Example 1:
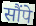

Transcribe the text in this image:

सौंपे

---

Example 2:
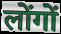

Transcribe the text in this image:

लोंगों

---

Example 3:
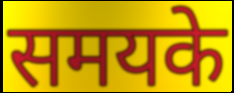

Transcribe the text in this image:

समयके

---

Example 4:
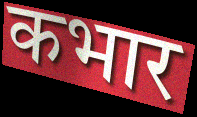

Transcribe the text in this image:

कभार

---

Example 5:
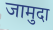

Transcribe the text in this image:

जामुदा